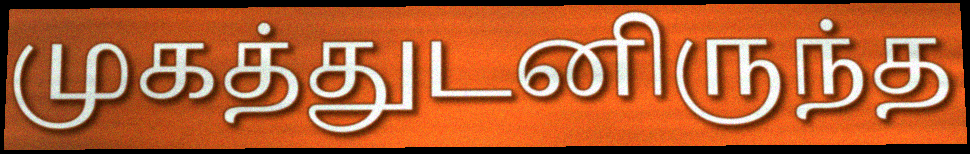
முகத்துடனிருந்த